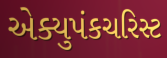
એક્યુપંકચરિસ્ટ